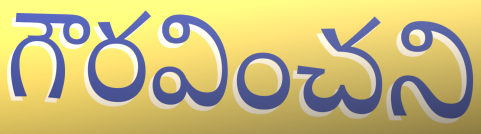
గౌరవించని